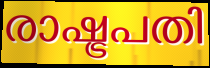
രാഷ്ട്രപതി